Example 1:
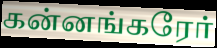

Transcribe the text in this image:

கன்னங்கரேர்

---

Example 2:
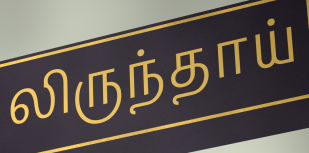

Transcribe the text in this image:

லிருந்தாய்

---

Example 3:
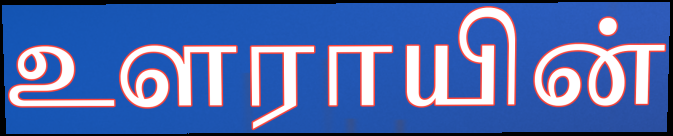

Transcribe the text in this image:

உளராயின்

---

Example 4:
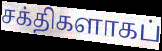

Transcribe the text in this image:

சக்திகளாகப்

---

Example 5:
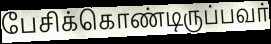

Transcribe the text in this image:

பேசிக்கொண்டிருப்பவர்